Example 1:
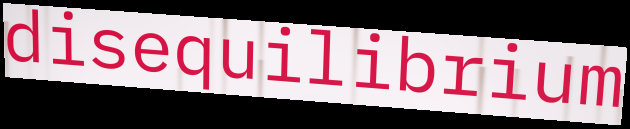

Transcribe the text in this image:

disequilibrium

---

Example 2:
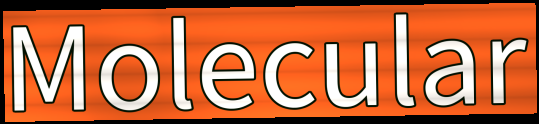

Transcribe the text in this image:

Molecular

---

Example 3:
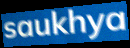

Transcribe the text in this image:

saukhya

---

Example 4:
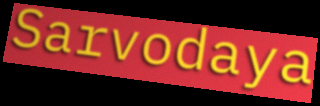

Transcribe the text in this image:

Sarvodaya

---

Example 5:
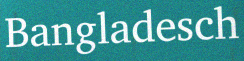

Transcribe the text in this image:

Bangladesch